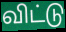
விட்டு